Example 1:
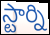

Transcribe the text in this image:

స్టార్ని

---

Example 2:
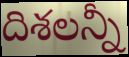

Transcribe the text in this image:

దిశలన్నీ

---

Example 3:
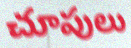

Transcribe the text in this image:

చూపులు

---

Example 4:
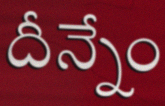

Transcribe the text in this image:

దీన్నేం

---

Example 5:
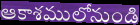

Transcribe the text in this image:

ఆకాశములోనుండి